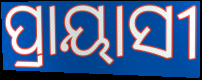
ପ୍ରାୟାସୀ